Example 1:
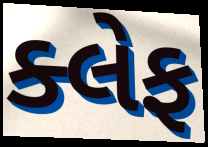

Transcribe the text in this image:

ક્લેફ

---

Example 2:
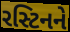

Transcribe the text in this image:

રસ્ટિનને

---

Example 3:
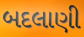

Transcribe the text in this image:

બદલાણી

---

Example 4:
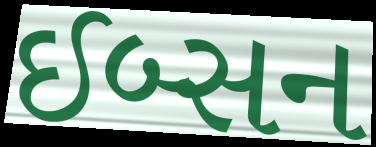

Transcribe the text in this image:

ઈબ્સન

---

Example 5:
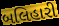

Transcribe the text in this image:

બલિહારી